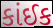
કાંઈક